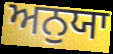
ਅਨੁਯਾ